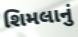
શિમલાનું